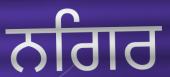
ਨਗਿਰ